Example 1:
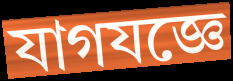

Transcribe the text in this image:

যাগযজ্ঞে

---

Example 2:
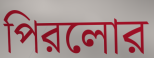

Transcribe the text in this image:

পিরলোর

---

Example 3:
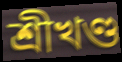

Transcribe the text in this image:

শ্রীখণ্ড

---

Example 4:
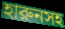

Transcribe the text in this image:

হারুনসহ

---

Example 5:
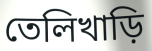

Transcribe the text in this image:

তেলিখাড়ি